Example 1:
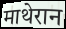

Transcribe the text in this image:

माथेरान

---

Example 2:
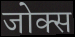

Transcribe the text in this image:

जोक्स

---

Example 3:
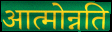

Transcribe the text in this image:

आत्मोन्नति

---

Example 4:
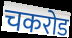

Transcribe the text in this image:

चकरोड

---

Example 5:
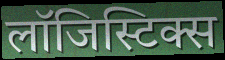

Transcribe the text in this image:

लॉजिस्टिक्स